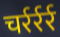
चर्रर्रर्र